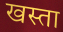
खस्ता